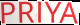
PRIYA